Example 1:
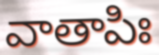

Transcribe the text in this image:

వాతాపిః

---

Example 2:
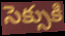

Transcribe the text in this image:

సెక్సుకి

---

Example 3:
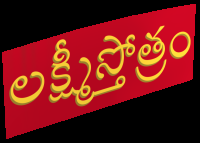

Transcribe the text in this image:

లక్ష్మీస్తోత్రం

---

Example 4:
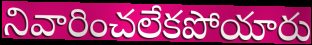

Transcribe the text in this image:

నివారించలేకపోయారు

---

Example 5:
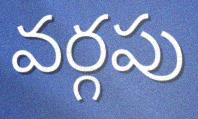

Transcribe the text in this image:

వర్గపు